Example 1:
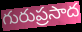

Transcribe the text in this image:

గురుప్రసాద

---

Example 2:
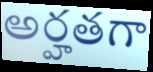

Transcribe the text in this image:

అర్హతగా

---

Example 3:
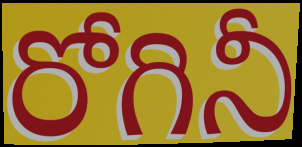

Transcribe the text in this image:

రోగినీ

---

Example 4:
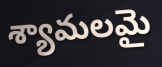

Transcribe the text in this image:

శ్యామలమై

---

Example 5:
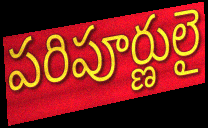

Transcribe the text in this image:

పరిపూర్ణులై